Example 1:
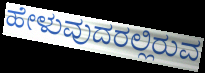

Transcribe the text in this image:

ಹೇಳುವುದರಲ್ಲಿರುವ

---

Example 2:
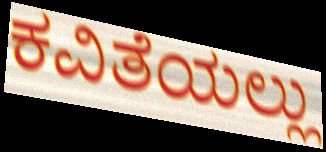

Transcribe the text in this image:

ಕವಿತೆಯಲ್ಲು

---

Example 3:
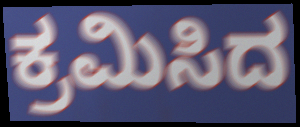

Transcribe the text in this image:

ಕ್ರಮಿಸಿದ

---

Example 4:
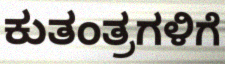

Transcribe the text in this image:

ಕುತಂತ್ರಗಳಿಗೆ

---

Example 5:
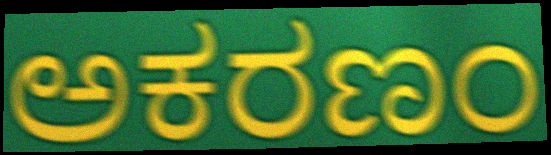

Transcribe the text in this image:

ಅಕರಣಂ